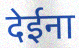
देईना